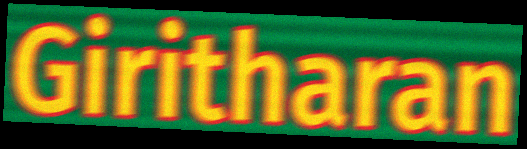
Giritharan